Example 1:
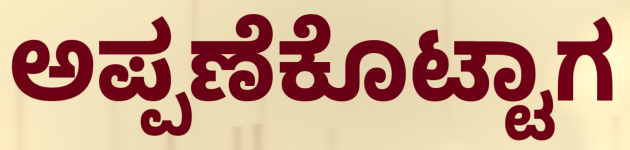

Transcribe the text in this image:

ಅಪ್ಪಣೆಕೊಟ್ಟಾಗ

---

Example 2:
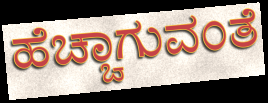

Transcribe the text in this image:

ಹೆಚ್ಚಾಗುವಂತೆ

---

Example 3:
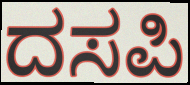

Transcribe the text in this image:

ದಸಪಿ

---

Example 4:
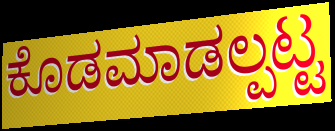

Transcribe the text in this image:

ಕೊಡಮಾಡಲ್ಪಟ್ಟ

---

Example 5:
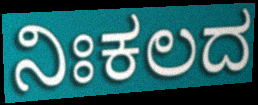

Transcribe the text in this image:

ನಿಃಕಲದ